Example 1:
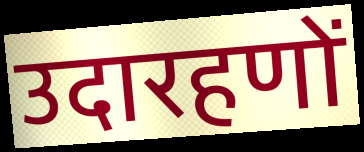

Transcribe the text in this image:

उदारहणों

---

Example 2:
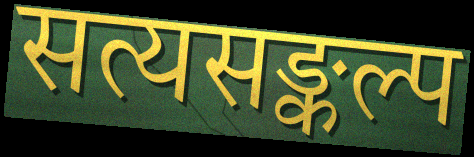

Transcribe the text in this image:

सत्यसङ्कल्प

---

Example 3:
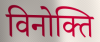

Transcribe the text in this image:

विनोक्ति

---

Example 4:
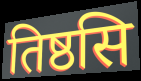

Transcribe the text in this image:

तिष्ठसि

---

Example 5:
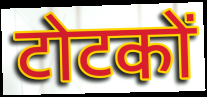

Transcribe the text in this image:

टोटकों